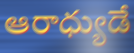
ఆరాధ్యుడే